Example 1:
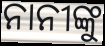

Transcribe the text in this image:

ନାନୀଙ୍କୁ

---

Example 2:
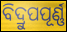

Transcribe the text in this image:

ବିଦ୍ରୁପପୂର୍ଣ୍ଣ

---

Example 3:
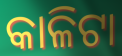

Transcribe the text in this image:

କାଳିଟା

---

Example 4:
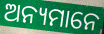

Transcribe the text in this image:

ଅନ୍ଯମାନେ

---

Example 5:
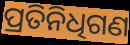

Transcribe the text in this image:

ପ୍ରତିନିଧିଗଣ